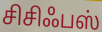
சிசிஃபஸ்